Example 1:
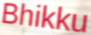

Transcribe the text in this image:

Bhikku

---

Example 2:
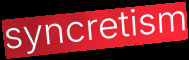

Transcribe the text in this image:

syncretism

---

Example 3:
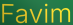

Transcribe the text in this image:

Favim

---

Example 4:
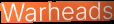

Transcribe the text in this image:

Warheads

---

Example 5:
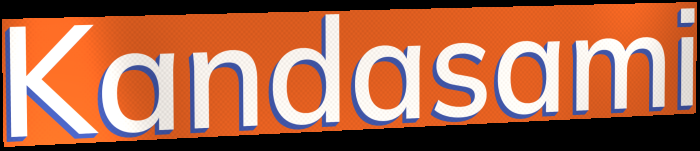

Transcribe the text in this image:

Kandasami